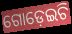
ଗୋଡ଼େଇଚି